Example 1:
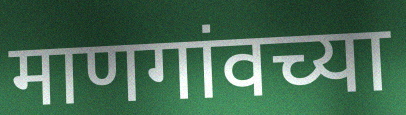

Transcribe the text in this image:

माणगांवच्या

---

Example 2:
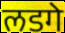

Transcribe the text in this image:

लडगे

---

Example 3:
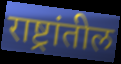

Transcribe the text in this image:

राष्ट्रांतील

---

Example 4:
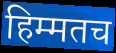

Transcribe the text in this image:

हिम्मतच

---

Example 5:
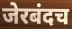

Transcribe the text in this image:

जेरबंदच